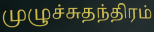
முழுச்சுதந்திரம்